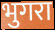
भुगरा